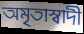
অমৃতাস্বাদী